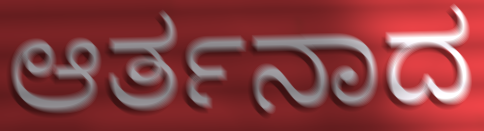
ಆರ್ತನಾದ